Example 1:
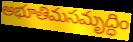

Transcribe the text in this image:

అభూతిమసమృద్ధిం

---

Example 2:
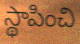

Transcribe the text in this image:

స్థాపించి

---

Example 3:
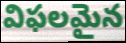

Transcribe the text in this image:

విఫలమైన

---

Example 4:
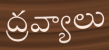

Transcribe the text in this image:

ద్రవ్యాలు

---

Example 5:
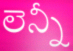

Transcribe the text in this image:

లెన్నీ